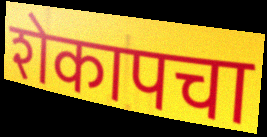
शेकापचा